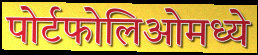
पोर्टफोलिओमध्ये